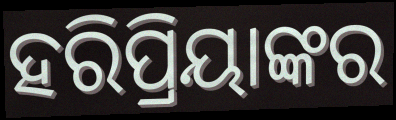
ହରିପ୍ରିୟାଙ୍କର